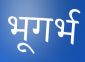
भूगर्भ